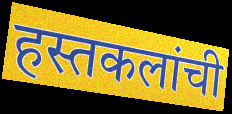
हस्तकलांची